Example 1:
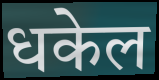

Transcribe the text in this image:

धकेल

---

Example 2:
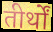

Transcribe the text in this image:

तीर्थों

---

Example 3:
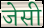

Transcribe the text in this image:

जेसी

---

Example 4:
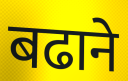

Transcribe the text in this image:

बढाने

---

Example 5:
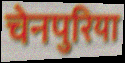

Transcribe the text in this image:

चेनपुरिया